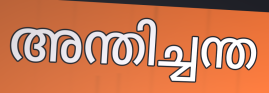
അന്തിച്ചന്ത